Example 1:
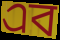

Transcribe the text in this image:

এব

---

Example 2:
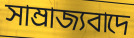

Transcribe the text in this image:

সাম্ৰাজ্যবাদে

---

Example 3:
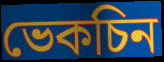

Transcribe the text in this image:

ভেকচিন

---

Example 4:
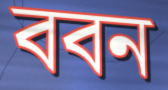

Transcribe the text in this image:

ববন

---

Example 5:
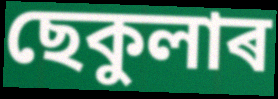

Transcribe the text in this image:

ছেকুলাৰ